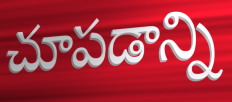
చూపడాన్ని